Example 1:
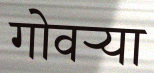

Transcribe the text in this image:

गोवर्‍या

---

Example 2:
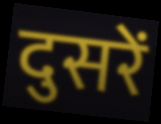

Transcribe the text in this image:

दुसरें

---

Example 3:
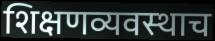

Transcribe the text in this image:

शिक्षणव्यवस्थाच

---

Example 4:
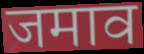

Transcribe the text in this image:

जमाव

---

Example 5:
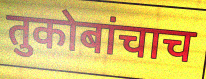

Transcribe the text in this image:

तुकोबांचाच